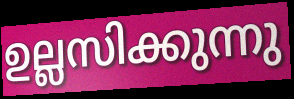
ഉല്ലസിക്കുന്നു